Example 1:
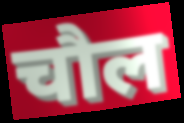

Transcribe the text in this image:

चौल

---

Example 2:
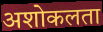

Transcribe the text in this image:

अशोकलता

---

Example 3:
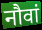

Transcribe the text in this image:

नौवां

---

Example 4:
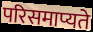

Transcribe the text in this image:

परिसमाप्यते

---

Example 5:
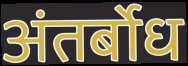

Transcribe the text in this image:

अंतर्बोध